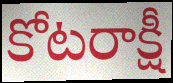
కోటరాక్షీ